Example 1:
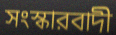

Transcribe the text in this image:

সংস্কারবাদী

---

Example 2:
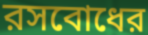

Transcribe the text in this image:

রসবোধের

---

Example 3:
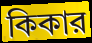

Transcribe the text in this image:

কিকার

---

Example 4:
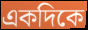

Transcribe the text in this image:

একদিকে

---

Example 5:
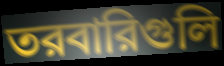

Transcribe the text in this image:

তরবারিগুলি